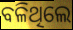
ବଳିଥିଲେ